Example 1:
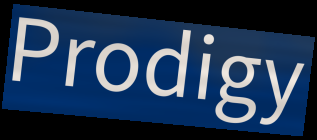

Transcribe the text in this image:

Prodigy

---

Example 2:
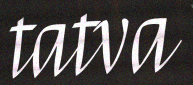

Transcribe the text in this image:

tatva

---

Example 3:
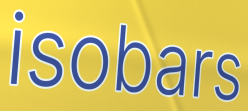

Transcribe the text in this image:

isobars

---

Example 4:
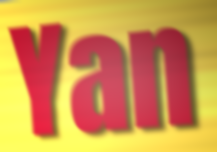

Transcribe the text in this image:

Yan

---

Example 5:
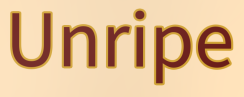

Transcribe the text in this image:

Unripe